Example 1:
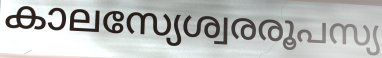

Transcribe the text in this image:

കാലസ്യേശ്വരരൂപസ്യ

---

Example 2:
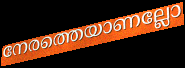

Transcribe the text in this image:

നേരത്തെയാണല്ലോ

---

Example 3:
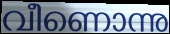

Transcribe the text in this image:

വീണൊന്നു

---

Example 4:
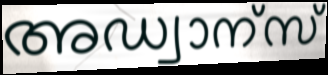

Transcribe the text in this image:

അഡ്വാന്സ്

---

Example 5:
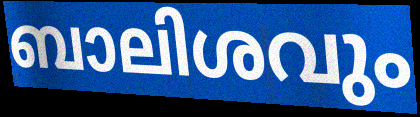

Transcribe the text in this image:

ബാലിശവും